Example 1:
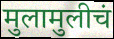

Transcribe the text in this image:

मुलामुलीचं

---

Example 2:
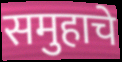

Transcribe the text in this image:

समुहाचे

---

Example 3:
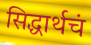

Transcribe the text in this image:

सिद्धार्थचं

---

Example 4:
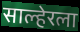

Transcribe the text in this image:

साल्हेरला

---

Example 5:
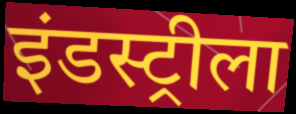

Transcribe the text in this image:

इंडस्ट्रीला